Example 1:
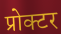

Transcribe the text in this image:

प्रोक्टर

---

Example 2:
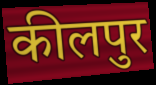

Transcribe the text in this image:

कीलपुर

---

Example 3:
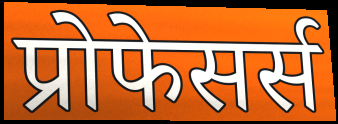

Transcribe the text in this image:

प्रोफेसर्स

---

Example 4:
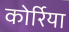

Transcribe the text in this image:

कोर्रिया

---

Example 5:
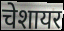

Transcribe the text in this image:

चेशायर